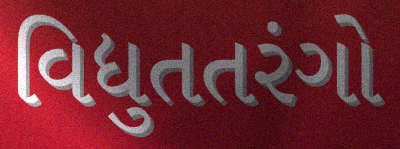
વિદ્યુતતરંગો